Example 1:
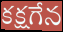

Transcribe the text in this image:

కక్షగేన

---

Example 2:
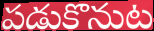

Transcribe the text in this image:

పడుకొనుట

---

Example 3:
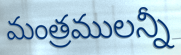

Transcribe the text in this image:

మంత్రములన్నీ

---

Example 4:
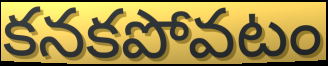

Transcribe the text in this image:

కనకపోవటం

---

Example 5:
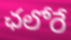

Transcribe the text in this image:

ఛలోరే